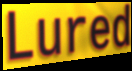
Lured